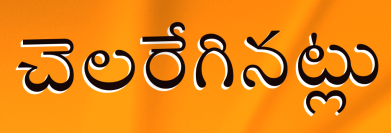
చెలరేగినట్లు